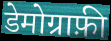
डेमोग्राफ़ी